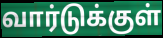
வார்டுக்குள்